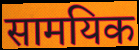
सामयिक